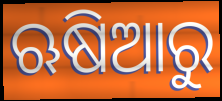
ଋଷିଆରୁ